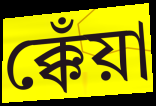
ক্কেঁয়া